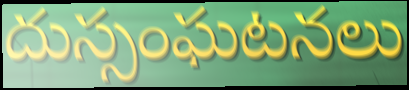
దుస్సంఘటనలు